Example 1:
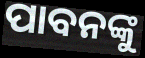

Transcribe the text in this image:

ପାବନଙ୍କୁ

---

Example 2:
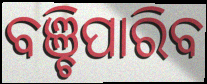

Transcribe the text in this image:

ବଞ୍ଚିପାରିବ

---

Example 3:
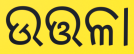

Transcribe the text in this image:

ଉତ୍ତଳା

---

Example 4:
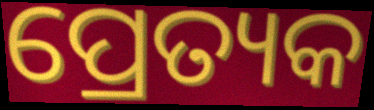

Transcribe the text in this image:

ପ୍ରେତ୍ୟକ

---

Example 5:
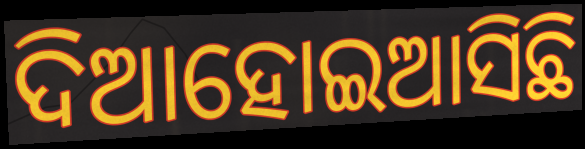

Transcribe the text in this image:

ଦିଆହୋଇଆସିଛି